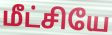
மீட்சியே